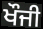
ਖੌਜੀ